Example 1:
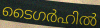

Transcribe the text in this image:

ടൈഗർഹിൽ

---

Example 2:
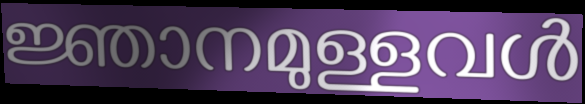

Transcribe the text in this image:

ജ്ഞാനമുള്ളവൾ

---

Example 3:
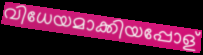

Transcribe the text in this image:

വിധേയമാക്കിയപ്പോള്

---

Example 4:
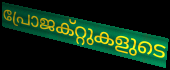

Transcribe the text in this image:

പ്രോജക്റ്റുകളുടെ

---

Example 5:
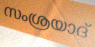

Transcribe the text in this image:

സംശ്രയാദ്